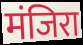
मंजिरा